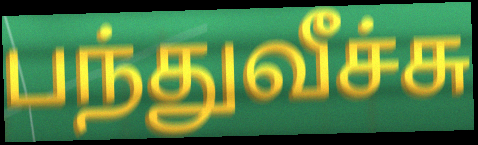
பந்துவீச்சு